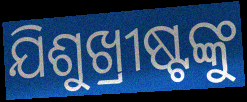
ଯିଶୁଖ୍ରୀଷ୍ଟଙ୍କୁ